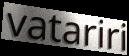
vatariri